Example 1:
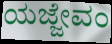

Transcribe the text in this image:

ಯಜ್ಜೇವಂ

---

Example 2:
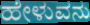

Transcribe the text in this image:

ಹೇಳುವನು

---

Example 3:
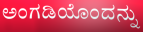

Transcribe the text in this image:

ಅಂಗಡಿಯೊಂದನ್ನು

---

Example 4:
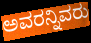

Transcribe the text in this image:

ಅವರನ್ನಿವರು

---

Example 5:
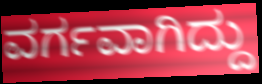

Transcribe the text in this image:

ವರ್ಗವಾಗಿದ್ದು